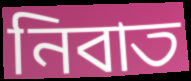
নিবাত